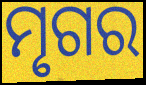
ମୃଗର